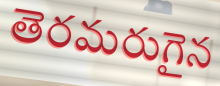
తెరమరుగైన